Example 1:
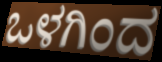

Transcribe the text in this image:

ಒಳಗಿಂದ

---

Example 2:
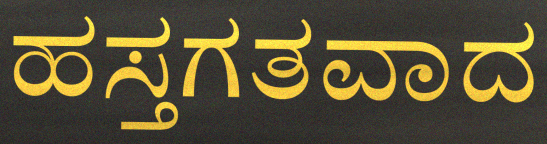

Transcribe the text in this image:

ಹಸ್ತಗತವಾದ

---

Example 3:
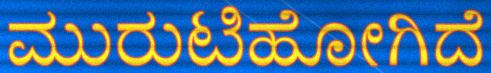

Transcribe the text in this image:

ಮುರುಟಿಹೋಗಿದೆ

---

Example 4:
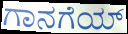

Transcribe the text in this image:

ಗಾನಗೆಯ್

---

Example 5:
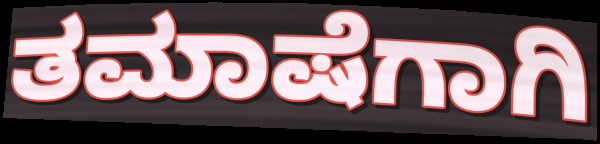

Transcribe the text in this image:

ತಮಾಷೆಗಾಗಿ